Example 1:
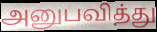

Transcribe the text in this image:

அனுபவித்து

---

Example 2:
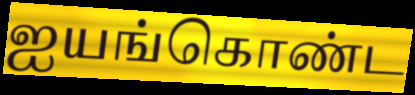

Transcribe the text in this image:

ஐயங்கொண்ட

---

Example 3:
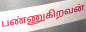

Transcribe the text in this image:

பண்ணுகிறவன்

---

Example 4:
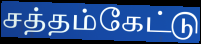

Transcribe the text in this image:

சத்தம்கேட்டு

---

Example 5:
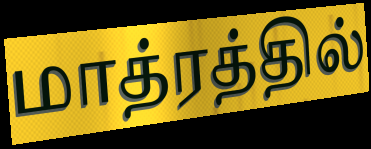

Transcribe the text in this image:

மாத்ரத்தில்